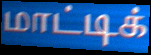
மாட்டிக்